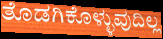
ತೊಡಗಿಕೊಳ್ಳುವುದಿಲ್ಲ